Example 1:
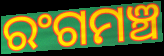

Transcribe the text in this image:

ରଂଗମଞ୍ଚ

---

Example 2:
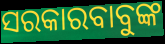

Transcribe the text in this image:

ସରକାରବାବୁଙ୍କ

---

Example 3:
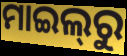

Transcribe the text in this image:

ମାଇଲ୍‌ରୁ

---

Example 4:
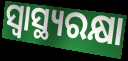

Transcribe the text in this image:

ସ୍ବାସ୍ଥ୍ୟରକ୍ଷା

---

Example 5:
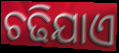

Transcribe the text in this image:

ଚଢିଯାଏ